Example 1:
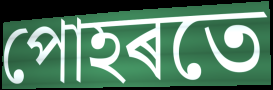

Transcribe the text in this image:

পোহৰতে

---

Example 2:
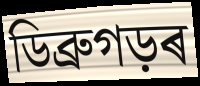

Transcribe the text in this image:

ডিব্ৰুগড়ৰ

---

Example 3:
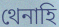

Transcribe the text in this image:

থেনাহি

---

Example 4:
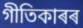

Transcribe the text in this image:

গীতিকাৰৰ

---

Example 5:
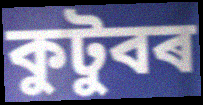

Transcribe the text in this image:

কুটুবৰ